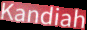
Kandiah